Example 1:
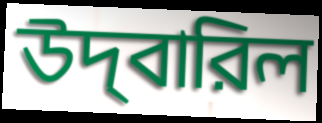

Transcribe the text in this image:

উদ্‌বারিল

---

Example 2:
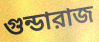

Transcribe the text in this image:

গুন্ডারাজ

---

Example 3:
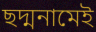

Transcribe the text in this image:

ছদ্মনামেই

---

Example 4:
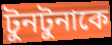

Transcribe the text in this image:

টুনটুনাকে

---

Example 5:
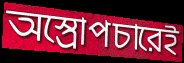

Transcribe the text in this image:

অস্ত্রোপচারেই